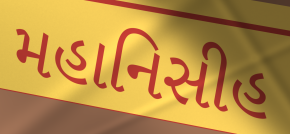
મહાનિસીહ